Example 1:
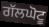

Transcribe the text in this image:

ਗੱਲਘੋਟੂ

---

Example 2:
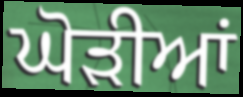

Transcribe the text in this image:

ਘੋੜੀਆਂ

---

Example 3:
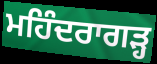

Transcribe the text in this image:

ਮਹਿੰਦਰਾਗੜ੍ਹ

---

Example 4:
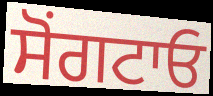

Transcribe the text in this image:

ਸੋਂਗਟਾਓ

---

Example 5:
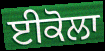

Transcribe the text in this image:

ਈਕੋਲਾ